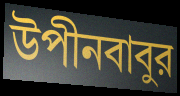
উপীনবাবুর